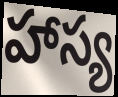
హాస్య